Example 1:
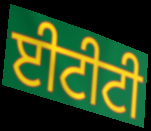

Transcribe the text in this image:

ਈਟੀਟੀ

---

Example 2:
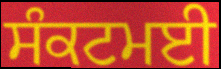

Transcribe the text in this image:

ਸੰਕਟਮਈ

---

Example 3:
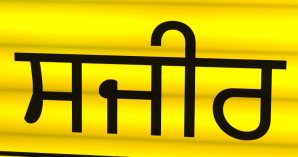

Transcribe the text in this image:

ਸਜੀਰ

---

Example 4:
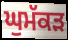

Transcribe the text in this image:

ਘੁਮੱਕੜ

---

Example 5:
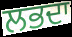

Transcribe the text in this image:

ਲਭਦਾ